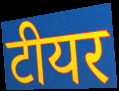
टीयर